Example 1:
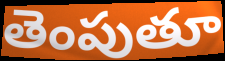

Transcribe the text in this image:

తెంపుతూ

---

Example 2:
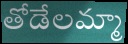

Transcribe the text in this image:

తోడేలమ్మా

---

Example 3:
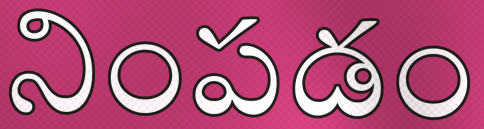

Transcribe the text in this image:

నింపడం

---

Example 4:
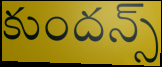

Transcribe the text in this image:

కుందన్స్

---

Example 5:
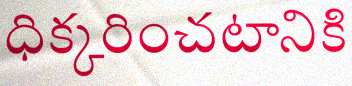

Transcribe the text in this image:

ధిక్కరించటానికి